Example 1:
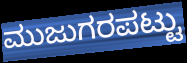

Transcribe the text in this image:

ಮುಜುಗರಪಟ್ಟು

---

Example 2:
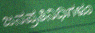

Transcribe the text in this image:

ಜನಪ್ರತಿನಿಧಿಗಳೂ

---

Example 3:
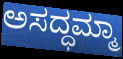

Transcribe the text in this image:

ಅಸದ್ಧಮ್ಮಾ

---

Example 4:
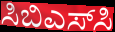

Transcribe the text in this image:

ಸಿಬಿಎಸ್‌ಸಿ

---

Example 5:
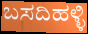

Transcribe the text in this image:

ಬಸದಿಹಳ್ಳಿ